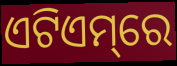
ଏଟିଏମ୍‌ରେ